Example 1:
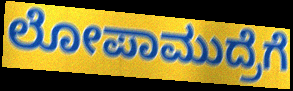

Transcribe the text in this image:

ಲೋಪಾಮುದ್ರೆಗೆ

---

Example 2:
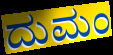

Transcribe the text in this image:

ದುಮಂ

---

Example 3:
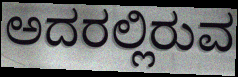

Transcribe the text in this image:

ಅದರಲ್ಲಿರುವ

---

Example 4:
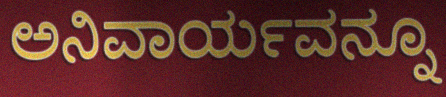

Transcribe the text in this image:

ಅನಿವಾರ್ಯವನ್ನೂ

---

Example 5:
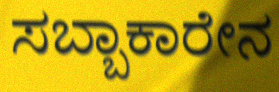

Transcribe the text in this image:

ಸಬ್ಬಾಕಾರೇನ